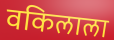
वकिलाला